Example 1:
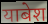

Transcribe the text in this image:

याबेश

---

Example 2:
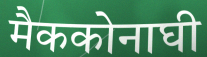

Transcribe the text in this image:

मैककोनाघी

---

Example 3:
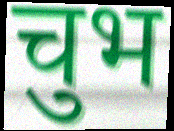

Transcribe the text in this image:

चुभ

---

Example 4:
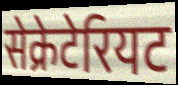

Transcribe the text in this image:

सेक्रेटेरियट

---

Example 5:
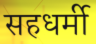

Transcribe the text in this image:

सहधर्मी